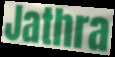
Jathra